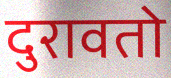
दुरावतो